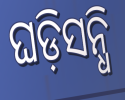
ଘଡ଼ିସନ୍ଧି